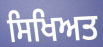
ਸਿਖਿਅਤ